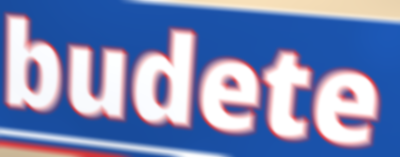
budete